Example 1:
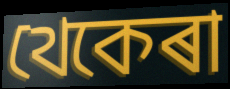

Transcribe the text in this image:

থেকেৰা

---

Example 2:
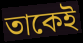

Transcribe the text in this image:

তাকেই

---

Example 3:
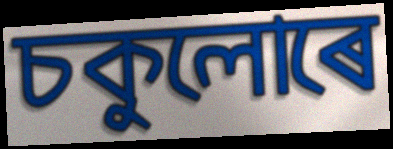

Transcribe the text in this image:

চকুলোৰে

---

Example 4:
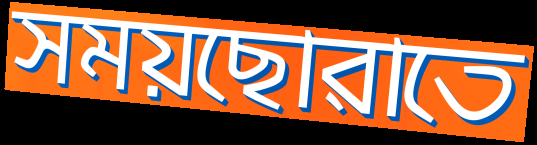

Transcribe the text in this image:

সময়ছোৱাতে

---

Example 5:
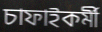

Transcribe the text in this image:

চাফাইকৰ্মী